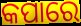
କପାରେ